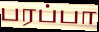
பரப்பா